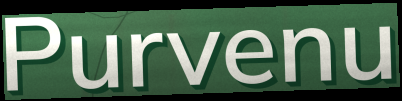
Purvenu